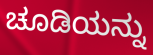
ಚೂಡಿಯನ್ನು